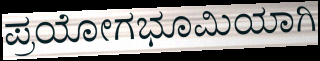
ಪ್ರಯೋಗಭೂಮಿಯಾಗಿ